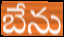
బేను